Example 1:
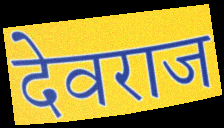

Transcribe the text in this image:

देवराज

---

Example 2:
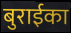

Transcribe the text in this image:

बुराईका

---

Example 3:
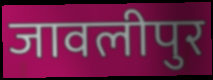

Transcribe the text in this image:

जावलीपुर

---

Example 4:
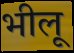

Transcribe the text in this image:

भीलू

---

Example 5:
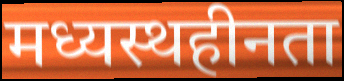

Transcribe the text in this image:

मध्यस्थहीनता